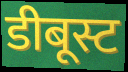
डीबूस्ट